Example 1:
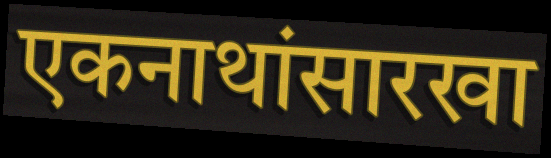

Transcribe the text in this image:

एकनाथांसारखा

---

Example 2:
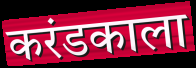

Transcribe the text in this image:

करंडकाला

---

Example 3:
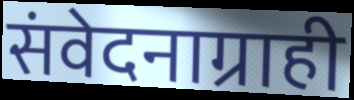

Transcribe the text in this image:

संवेदनाग्राही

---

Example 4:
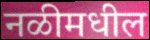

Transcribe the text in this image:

नळीमधील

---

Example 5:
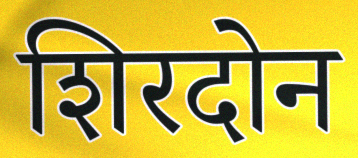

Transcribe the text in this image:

शिरदोन